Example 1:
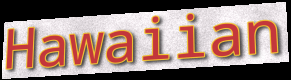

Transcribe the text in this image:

Hawaiian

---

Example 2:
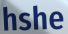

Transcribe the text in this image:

hshe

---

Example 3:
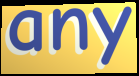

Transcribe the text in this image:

any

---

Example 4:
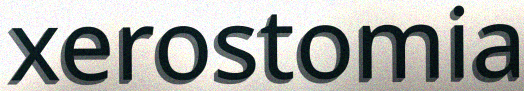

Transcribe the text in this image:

xerostomia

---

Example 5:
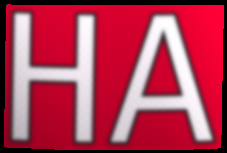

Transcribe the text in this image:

HA